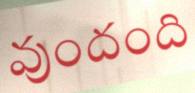
వుందంది